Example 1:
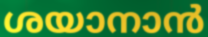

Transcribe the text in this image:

ശയാനാൻ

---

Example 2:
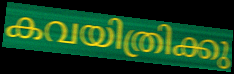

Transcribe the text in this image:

കവയിത്രിക്കു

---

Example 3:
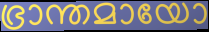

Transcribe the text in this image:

ഭ്രാന്തമായോ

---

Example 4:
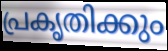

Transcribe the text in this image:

പ്രകൃതിക്കും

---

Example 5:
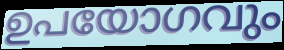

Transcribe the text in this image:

ഉപയോഗവും